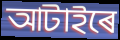
আটাইৰে